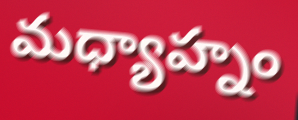
మధ్యాహ్నం